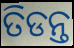
ତିଡନ୍ତ